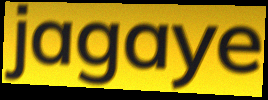
jagaye